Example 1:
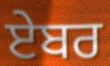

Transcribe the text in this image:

ਏਬਰ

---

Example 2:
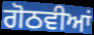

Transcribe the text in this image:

ਗੋਠਵੀਆਂ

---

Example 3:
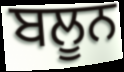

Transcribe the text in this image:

ਬਲੂਨ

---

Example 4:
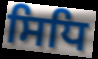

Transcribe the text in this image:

ਸਿਧਿ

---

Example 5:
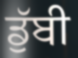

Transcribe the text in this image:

ਡੁੱਬੀ